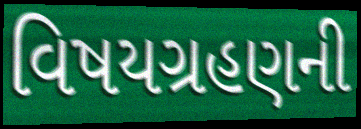
વિષયગ્રહણની